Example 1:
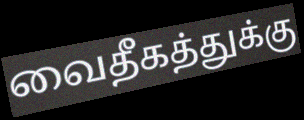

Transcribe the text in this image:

வைதீகத்துக்கு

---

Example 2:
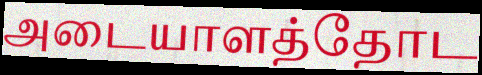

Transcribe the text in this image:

அடையாளத்தோட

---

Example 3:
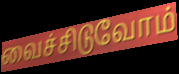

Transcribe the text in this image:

வைச்சிடுவோம்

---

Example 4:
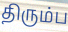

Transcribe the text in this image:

திரும்ப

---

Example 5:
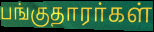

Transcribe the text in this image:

பங்குதாரர்கள்